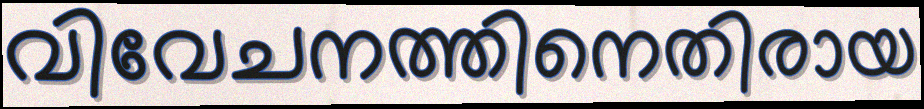
വിവേചനത്തിനെതിരായ